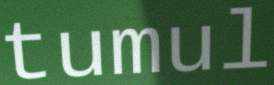
tumul